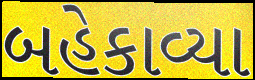
બહેકાવ્યા